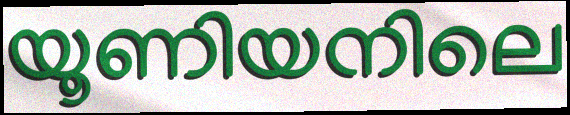
യൂണിയനിലെ